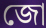
জো